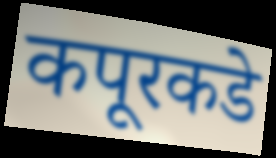
कपूरकडे